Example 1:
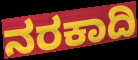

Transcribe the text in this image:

ನರಕಾದಿ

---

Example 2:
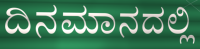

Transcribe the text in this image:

ದಿನಮಾನದಲ್ಲಿ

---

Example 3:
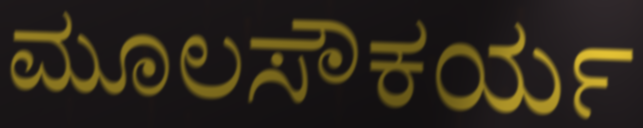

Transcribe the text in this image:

ಮೂಲಸೌಕರ್ಯ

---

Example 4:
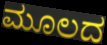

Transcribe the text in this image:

ಮೂಲದ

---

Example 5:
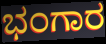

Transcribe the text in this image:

ಭಂಗಾರ